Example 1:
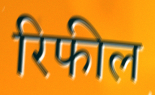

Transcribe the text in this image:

रिफील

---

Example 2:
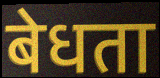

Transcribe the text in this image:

बेधता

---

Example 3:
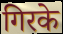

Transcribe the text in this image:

गिरके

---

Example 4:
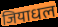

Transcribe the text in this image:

जियाधल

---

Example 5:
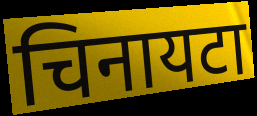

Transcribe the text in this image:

चिनायटा